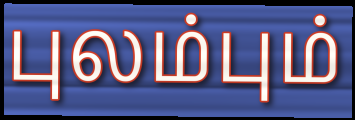
புலம்பும்